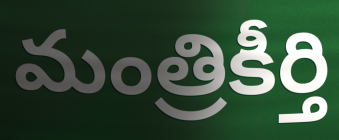
మంత్రికీర్తి